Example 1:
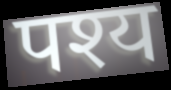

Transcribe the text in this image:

पश्य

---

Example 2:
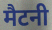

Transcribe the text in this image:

मैटनी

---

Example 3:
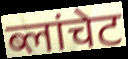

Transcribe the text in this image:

ब्लांचेट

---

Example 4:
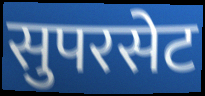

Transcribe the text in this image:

सुपरसेट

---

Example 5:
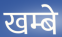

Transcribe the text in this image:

खम्बे